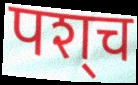
पश्च